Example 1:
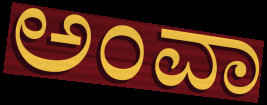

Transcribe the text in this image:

ಅಂವಾ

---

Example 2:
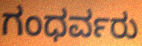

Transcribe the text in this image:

ಗಂಧರ್ವರು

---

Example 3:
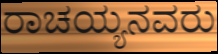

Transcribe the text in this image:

ರಾಚಯ್ಯನವರು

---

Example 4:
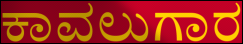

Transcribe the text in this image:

ಕಾವಲುಗಾರ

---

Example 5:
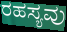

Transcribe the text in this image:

ರಹಸ್ಯವು